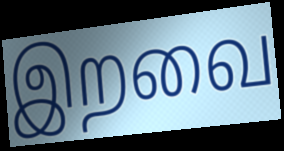
இறவை